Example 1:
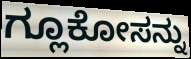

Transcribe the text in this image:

ಗ್ಲೂಕೋಸನ್ನು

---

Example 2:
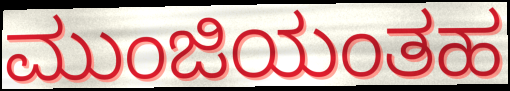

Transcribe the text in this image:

ಮುಂಜಿಯಂತಹ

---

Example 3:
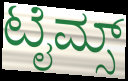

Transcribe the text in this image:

ಟೈಮ್ಸ್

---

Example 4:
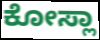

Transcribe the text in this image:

ಕೋಸ್ಲಾ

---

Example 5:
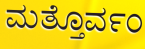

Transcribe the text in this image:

ಮತ್ತೊರ್ವಂ